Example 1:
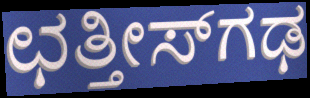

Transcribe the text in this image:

ಛತ್ತೀಸ್‍ಗಢ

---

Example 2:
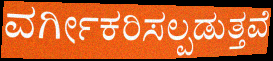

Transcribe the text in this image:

ವರ್ಗೀಕರಿಸಲ್ಪಡುತ್ತವೆ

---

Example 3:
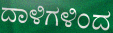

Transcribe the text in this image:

ದಾಳಿಗಳಿಂದ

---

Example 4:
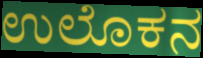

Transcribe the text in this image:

ಉಲೊಕನ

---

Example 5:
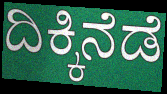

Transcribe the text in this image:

ದಿಕ್ಕಿನೆಡೆ